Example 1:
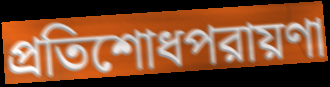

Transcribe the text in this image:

প্রতিশোধপরায়ণা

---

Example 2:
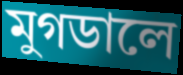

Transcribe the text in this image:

মুগডালে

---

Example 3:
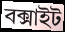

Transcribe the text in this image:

বক্সাইট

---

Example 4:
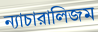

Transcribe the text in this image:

ন্যাচারালিজম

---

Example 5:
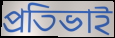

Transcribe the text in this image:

প্রতিভাই